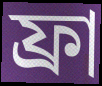
ফ্ৰা